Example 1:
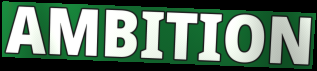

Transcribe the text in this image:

AMBITION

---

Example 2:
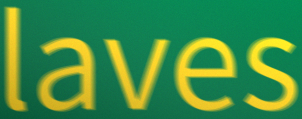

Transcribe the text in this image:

laves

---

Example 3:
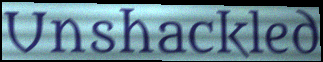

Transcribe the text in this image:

Unshackled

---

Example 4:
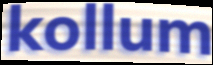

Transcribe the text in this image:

kollum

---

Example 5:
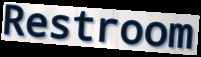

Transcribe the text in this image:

Restroom